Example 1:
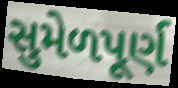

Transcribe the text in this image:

સુમેળપૂર્ણ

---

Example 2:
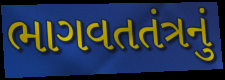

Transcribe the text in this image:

ભાગવતતંત્રનું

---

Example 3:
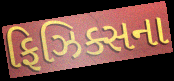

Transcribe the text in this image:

ફિઝિક્સના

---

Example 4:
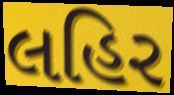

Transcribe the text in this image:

લહિર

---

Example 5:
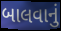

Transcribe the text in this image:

બાલવાનું